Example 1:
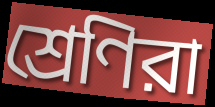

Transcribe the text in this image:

শ্রেণিরা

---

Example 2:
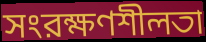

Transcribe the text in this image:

সংরক্ষণশীলতা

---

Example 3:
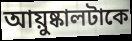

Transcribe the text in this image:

আয়ুষ্কালটাকে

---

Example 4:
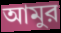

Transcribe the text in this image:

আমুর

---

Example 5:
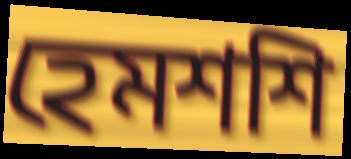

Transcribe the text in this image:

হেমশশি